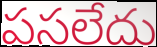
పసలేదు